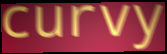
curvy